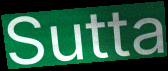
Sutta